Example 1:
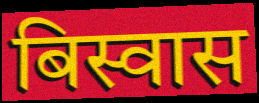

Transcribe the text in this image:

बिस्वास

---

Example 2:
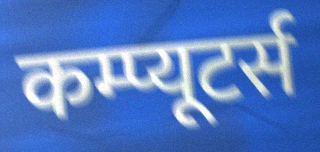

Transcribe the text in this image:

कम्प्यूटर्स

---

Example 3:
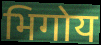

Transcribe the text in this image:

भिगोय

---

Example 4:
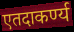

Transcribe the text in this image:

एतदाकर्ण्य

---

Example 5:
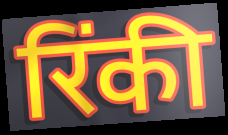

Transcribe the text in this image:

रिंकी